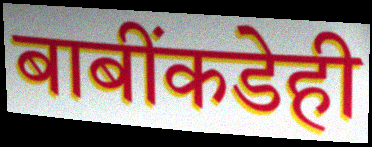
बाबींकडेही